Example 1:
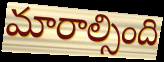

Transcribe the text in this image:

మారాల్సింది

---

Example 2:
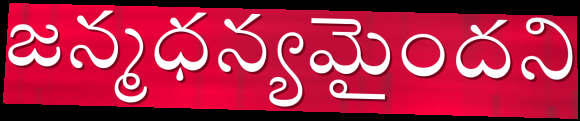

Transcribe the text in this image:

జన్మధన్యమైందని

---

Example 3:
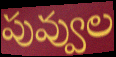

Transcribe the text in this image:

పువ్వుల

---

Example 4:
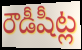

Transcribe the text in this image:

రౌడీషీట్ల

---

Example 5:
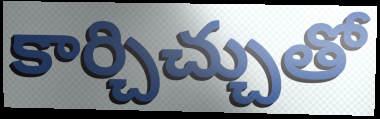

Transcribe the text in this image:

కార్చిచ్చుతో